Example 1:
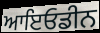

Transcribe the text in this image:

ਆਇਓਡੀਨ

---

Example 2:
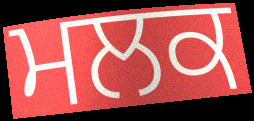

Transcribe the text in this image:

ਮਲਕ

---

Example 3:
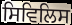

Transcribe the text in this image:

ਸਿਵਿਲਿਸ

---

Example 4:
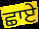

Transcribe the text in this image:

ਛਾਏ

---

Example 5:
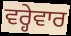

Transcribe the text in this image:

ਵਰ੍ਹੇਵਾਰ